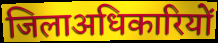
जिलाअधिकारियों